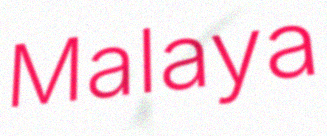
Malaya